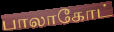
பாலாகோட்